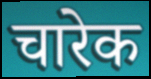
चारेक